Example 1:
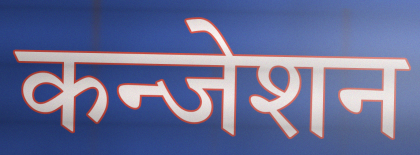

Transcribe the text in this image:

कन्जेशन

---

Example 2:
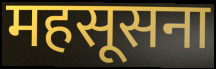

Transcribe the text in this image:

महसूसना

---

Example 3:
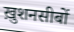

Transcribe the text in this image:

ख़ुशनसीबों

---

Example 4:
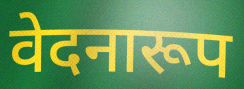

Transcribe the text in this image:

वेदनारूप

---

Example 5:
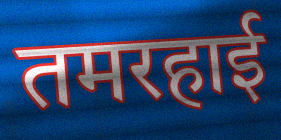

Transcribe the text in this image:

तमरहाई